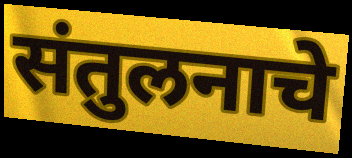
संतुलनाचे